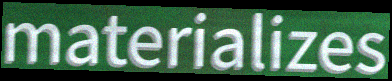
materializes